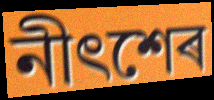
নীৎশেৰ